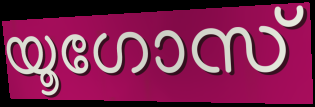
യൂഗോസ്